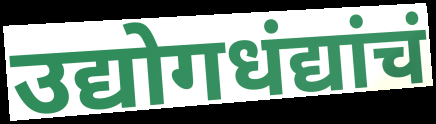
उद्योगधंद्यांचं